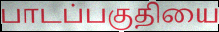
பாடப்பகுதியை